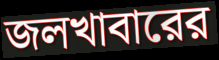
জলখাবারের